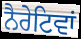
ਨੈਰੇਟਿਵਾਂ